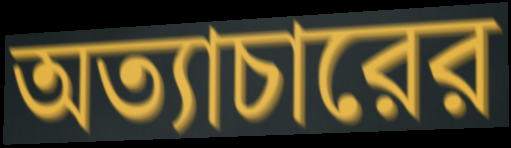
অত্যাচারের